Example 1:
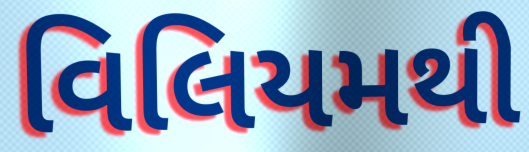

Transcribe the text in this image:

વિલિયમથી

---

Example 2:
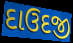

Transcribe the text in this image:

દાઉદજી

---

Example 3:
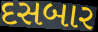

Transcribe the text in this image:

દસબાર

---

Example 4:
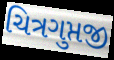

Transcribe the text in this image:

ચિત્રગુપ્તજી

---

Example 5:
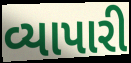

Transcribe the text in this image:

વ્યાપારી